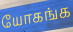
யோகங்க